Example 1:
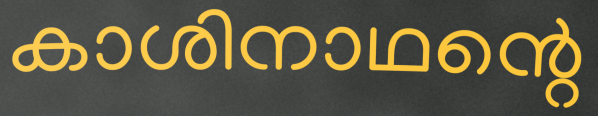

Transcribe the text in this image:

കാശിനാഥന്റെ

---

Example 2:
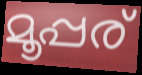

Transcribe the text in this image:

മൂപ്പര്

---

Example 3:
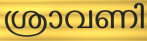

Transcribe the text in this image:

ശ്രാവണി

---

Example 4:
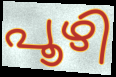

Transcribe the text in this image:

പൂഴി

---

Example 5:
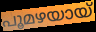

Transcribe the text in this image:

പൂമഴയായ്